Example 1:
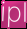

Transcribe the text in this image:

ipl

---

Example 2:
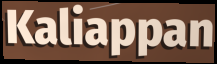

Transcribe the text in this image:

Kaliappan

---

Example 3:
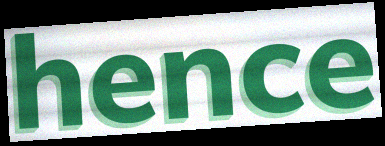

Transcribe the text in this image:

hence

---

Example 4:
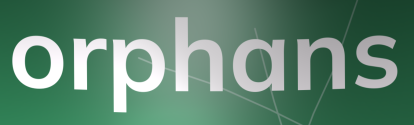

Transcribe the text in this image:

orphans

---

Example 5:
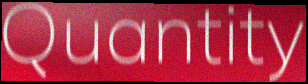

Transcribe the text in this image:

Quantity